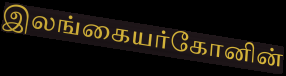
இலங்கையர்கோனின்